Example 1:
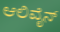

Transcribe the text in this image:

ಆಲಿವೈನ್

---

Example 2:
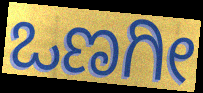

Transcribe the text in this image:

ಒಣಗೀ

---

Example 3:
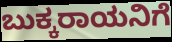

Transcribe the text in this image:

ಬುಕ್ಕರಾಯನಿಗೆ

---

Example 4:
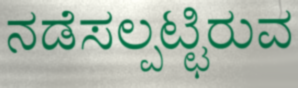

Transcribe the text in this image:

ನಡೆಸಲ್ಪಟ್ಟಿರುವ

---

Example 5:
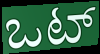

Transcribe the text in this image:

ಒಟ್